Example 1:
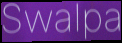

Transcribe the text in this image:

Swalpa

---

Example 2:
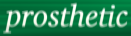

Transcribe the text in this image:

prosthetic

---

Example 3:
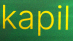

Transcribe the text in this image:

kapil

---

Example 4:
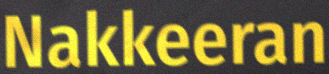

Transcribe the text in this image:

Nakkeeran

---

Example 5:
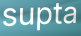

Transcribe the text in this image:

supta